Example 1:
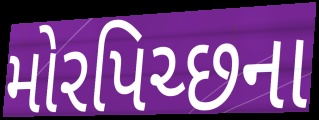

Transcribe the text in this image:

મોરપિચ્છના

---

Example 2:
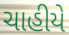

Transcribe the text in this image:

ચાહીયે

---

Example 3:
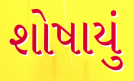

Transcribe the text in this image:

શોષાયું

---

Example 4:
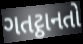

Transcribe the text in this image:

ગતટ્ઠાનતો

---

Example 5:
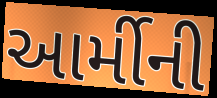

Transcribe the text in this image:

આર્મીની